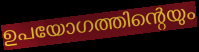
ഉപയോഗത്തിന്റെയും